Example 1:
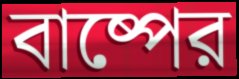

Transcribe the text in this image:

বাষ্পের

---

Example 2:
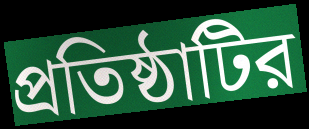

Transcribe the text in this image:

প্রতিষ্ঠাটির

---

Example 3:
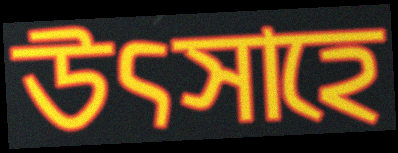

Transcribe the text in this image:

উৎসাহে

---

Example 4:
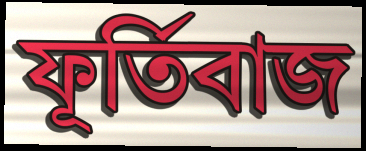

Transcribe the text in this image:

ফূর্তিবাজ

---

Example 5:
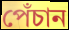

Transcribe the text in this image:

পেঁচান